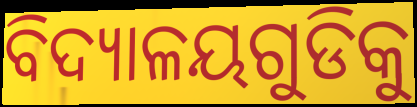
ବିଦ୍ୟାଳୟଗୁଡିକୁ